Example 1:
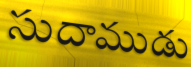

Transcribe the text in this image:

సుదాముడు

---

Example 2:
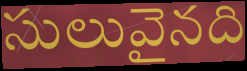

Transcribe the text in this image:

సులువైనది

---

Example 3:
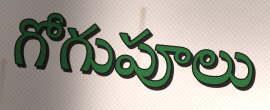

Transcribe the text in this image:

గోగుపూలు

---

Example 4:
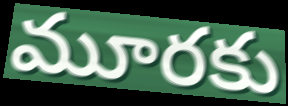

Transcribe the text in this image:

మూరకు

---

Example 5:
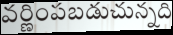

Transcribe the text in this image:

వర్ణింపబడుచున్నది